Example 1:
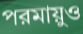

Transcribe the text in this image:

পরমায়ুও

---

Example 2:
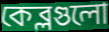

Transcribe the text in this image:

কেব্লগুলো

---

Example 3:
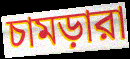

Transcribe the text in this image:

চামড়ারা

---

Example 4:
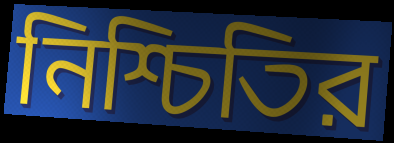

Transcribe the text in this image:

নিশ্চিতির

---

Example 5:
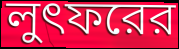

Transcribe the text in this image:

লুৎফরের